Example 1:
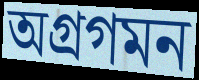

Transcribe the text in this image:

অগ্রগমন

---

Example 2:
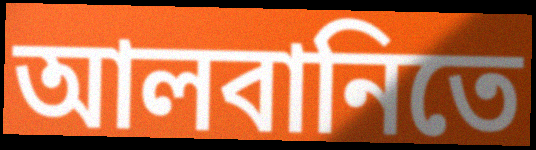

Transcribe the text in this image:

আলবানিতে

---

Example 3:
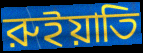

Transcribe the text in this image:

রুইয়াতি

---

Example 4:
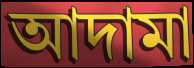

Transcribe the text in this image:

আদামা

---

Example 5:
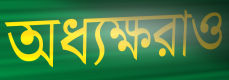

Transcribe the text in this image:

অধ্যক্ষরাও